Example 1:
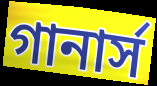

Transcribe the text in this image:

গানার্স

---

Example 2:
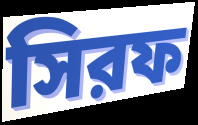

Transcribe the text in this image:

সিরফ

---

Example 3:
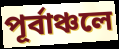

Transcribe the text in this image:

পূর্বাঞ্চলে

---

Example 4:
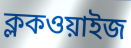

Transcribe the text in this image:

ক্লকওয়াইজ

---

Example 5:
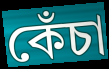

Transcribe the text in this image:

কেঁচা